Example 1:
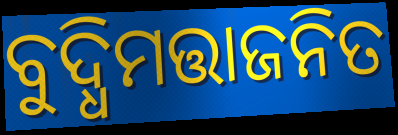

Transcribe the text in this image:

ବୁଦ୍ଧିମତ୍ତାଜନିତ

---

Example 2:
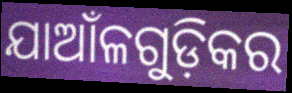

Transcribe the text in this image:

ଯାଆଁଳଗୁଡ଼ିକର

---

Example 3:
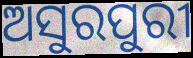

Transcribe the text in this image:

ଅସୁରପୁରୀ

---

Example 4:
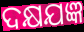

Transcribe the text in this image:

ଦକ୍ଷଯଜ୍ଞ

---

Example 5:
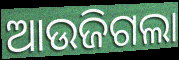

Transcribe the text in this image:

ଆଉଜିଗଲା